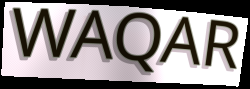
WAQAR